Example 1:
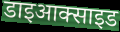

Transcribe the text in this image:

डाइआक्साइड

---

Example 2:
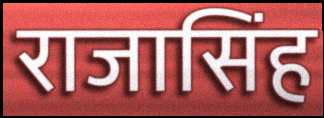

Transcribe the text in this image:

राजासिंह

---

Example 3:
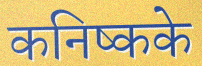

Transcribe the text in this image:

कनिष्कके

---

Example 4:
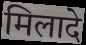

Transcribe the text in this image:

मिलादे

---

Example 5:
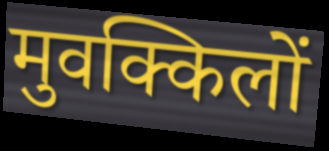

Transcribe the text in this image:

मुवक्किलों